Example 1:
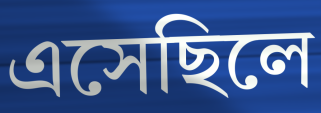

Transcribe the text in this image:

এসেছিলে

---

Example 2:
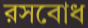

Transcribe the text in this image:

রসবোধ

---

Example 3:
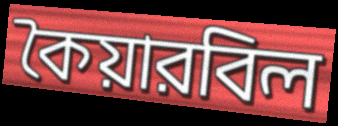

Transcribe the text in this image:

কৈয়ারবিল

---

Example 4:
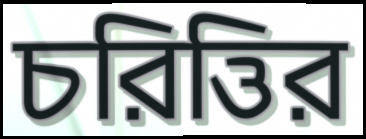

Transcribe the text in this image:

চরিত্তির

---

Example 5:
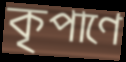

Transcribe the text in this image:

কৃপাণে